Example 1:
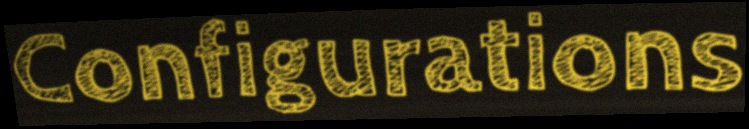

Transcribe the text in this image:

Configurations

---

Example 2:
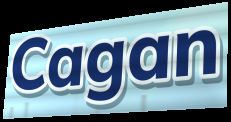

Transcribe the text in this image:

Cagan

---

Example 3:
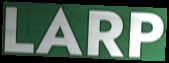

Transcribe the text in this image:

LARP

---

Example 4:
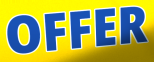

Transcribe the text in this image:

OFFER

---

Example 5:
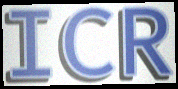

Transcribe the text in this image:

ICR